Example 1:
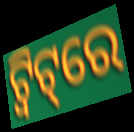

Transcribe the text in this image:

ଟ୍ବିଟ୍‌ରେ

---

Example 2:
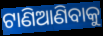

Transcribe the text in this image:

ଟାଣିଆଣିବାକୁ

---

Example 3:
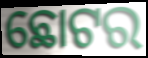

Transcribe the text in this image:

ଛୋଟର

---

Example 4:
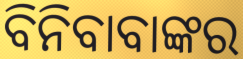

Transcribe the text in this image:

ବିନିବାବାଙ୍କର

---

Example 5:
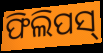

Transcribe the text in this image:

ଫିଲିପସ୍